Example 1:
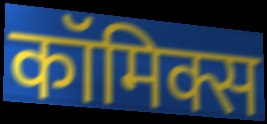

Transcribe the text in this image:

कॉमिक्स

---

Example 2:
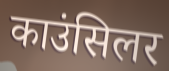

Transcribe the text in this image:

काउंसिलर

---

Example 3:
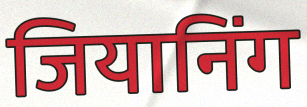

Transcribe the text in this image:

जियानिंग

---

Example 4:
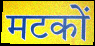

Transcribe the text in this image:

मटकों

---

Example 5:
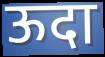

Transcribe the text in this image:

ऊदा